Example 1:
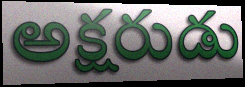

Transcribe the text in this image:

అక్షరుడు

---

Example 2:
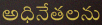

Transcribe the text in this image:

అధినేతలను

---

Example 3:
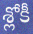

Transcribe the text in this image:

శ్లోకీ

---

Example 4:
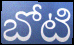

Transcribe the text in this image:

బోటి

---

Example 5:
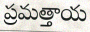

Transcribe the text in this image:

ప్రమత్తాయ